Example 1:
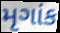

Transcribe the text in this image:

મૃગાંક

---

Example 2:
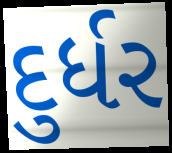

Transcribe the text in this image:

દુર્ધર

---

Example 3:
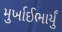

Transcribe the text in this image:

મુર્ખાઈભાર્યું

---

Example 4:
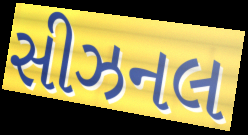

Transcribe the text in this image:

સીઝનલ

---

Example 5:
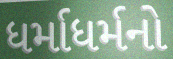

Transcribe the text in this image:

ધર્માધર્મનો